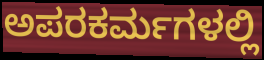
ಅಪರಕರ್ಮಗಳಲ್ಲಿ